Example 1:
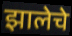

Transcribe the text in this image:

झालेचे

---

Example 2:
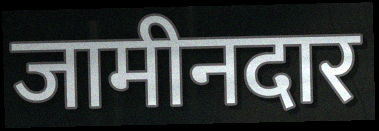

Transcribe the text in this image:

जामीनदार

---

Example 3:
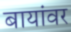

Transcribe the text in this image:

बायांवर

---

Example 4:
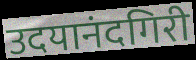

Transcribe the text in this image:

उदयानंदगिरी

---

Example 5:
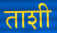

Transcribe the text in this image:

ताशी